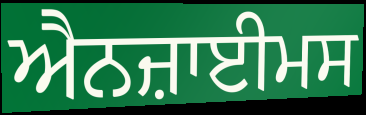
ਐਨਜ਼ਾਈਮਸ